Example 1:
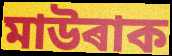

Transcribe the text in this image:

মাউৰাক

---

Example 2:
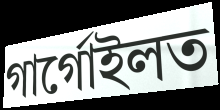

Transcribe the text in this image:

গাৰ্গোইলত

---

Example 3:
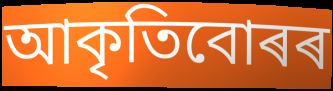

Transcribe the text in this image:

আকৃতিবোৰৰ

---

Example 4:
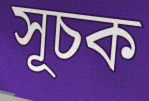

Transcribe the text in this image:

সূচক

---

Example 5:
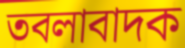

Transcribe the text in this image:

তবলাবাদক